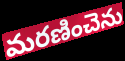
మరణించెను